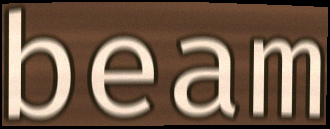
beam